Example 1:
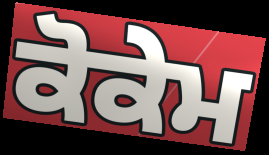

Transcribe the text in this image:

ਕੋਕੇਮ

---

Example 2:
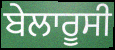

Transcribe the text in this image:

ਬੇਲਾਰੂਸੀ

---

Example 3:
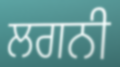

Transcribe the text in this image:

ਲਗਨੀ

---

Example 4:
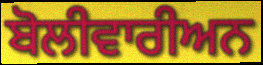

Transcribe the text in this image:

ਬੋਲੀਵਾਰੀਅਨ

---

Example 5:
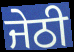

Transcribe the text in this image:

ਜੇਠੀ